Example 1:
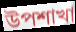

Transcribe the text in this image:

উপশাখা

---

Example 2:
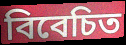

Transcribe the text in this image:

বিবেচিত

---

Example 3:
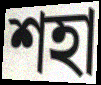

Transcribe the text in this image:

শহা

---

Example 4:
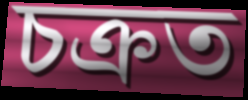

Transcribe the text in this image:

চক্ৰত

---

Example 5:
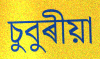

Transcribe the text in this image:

চুবুৰীয়া